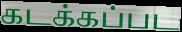
கடக்கப்பட